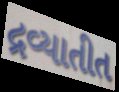
દ્રવ્યાતીત